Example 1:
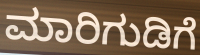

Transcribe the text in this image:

ಮಾರಿಗುಡಿಗೆ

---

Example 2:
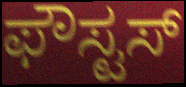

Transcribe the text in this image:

ಫೌಸ್ಟಸ್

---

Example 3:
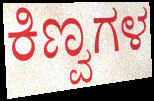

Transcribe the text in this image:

ಕಿಣ್ವಗಳ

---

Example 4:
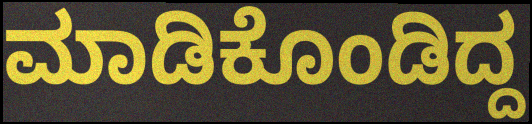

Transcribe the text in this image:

ಮಾಡಿಕೊಂಡಿದ್ದ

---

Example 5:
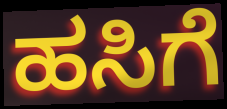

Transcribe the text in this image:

ಹಸಿಗೆ